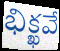
భిక్ఖవే